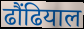
ढौंढियाल